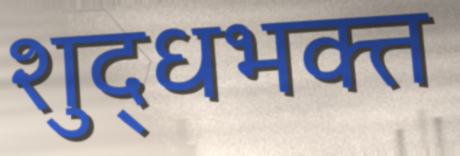
शुद्धभक्त